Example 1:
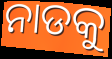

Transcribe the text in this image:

ନାଡକୁ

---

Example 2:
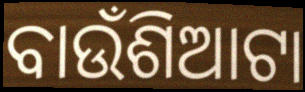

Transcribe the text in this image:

ବାଉଁଶିଆଟା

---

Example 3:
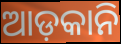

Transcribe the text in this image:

ଆଡ଼କାନି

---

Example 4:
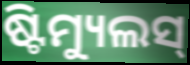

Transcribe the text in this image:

ଷ୍ଟିମ୍ୟୁଲସ୍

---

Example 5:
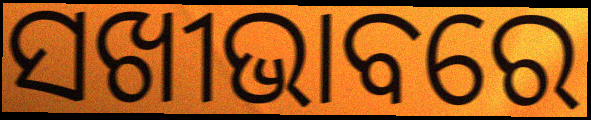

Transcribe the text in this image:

ସଖୀଭାବରେ